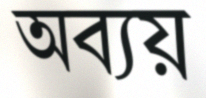
অব্যয়